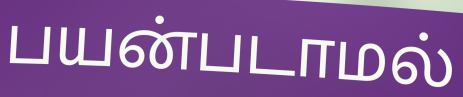
பயன்படாமல்